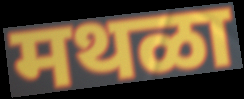
मथळा